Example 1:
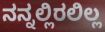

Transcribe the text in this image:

ನನ್ನಲ್ಲಿರಲಿಲ್ಲ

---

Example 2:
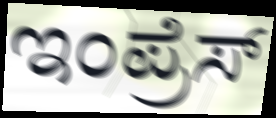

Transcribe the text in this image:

ಇಂಪ್ರೆಸ್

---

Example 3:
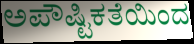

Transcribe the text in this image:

ಅಪೌಷ್ಟಿಕತೆಯಿಂದ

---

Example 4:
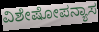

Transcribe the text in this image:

ವಿಶೇಷೋಪನ್ಯಾಸ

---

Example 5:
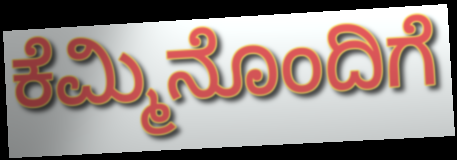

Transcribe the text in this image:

ಕೆಮ್ಮಿನೊಂದಿಗೆ